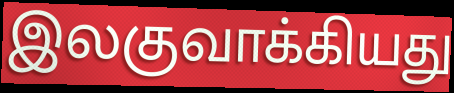
இலகுவாக்கியது